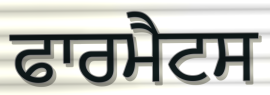
ਫਾਰਮੈਟਸ